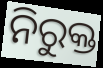
ନିରୁକ୍ତ